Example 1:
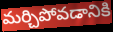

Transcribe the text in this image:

మర్చిపోవడానికి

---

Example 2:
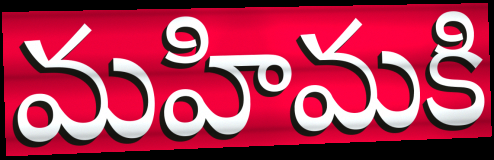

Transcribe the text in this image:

మహిమకి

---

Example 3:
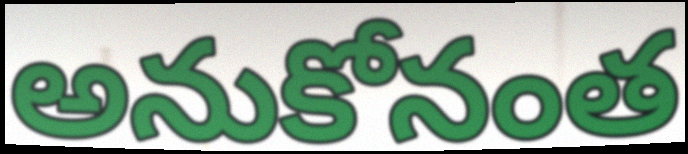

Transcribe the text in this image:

అనుకోనంత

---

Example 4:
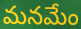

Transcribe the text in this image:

మనమేం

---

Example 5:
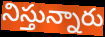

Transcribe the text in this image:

నిస్తున్నారు